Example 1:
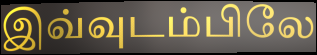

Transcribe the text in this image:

இவ்வுடம்பிலே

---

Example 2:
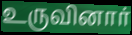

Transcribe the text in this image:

உருவினார்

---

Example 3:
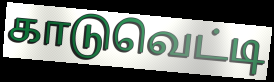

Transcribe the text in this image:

காடுவெட்டி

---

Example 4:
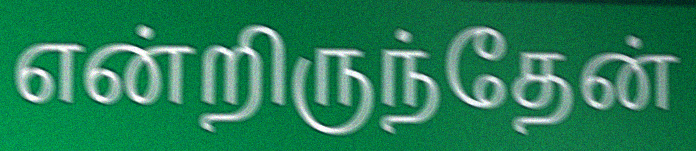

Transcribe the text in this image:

என்றிருந்தேன்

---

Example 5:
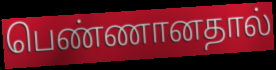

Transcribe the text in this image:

பெண்ணானதால்